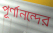
পূর্ণানন্দের